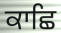
ਕਾਛਿ